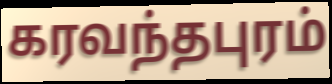
கரவந்தபுரம்